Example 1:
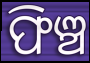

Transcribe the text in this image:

ଫିଞ୍ଚ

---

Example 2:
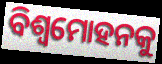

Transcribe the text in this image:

ବିଶ୍ଵମୋହନକୁ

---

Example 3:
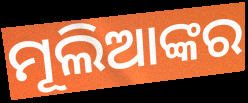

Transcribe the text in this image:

ମୂଲିଆଙ୍କର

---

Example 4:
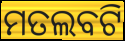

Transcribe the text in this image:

ମତଲବଟି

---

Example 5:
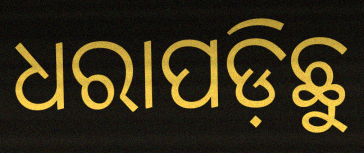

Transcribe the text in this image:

ଧରାପଡ଼ିଛୁ